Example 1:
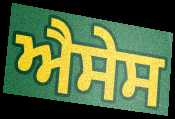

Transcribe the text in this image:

ਐਸੇਸ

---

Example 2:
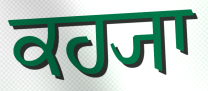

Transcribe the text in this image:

ਕਹ੍ਯਾ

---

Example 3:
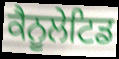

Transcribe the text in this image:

ਕੈਨੂਲੇਟਿਡ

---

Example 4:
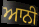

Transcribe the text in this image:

ਆਨੀ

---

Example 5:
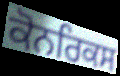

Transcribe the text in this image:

ਕੋਨਰਿਕਸ